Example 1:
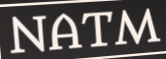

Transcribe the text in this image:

NATM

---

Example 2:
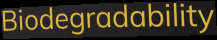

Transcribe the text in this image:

Biodegradability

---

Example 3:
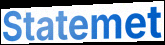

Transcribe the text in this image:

Statemet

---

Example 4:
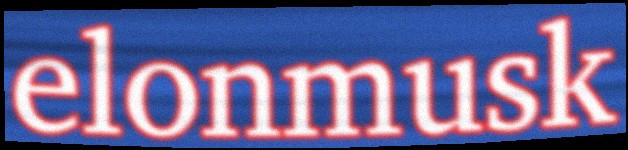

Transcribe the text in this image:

elonmusk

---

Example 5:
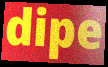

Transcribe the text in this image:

dipe